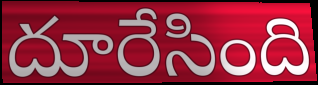
దూరేసింది